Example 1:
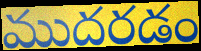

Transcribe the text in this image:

ముదరడం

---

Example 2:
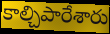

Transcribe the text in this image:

కాల్చిపారేశారు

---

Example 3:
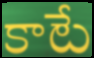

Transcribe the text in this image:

కాటే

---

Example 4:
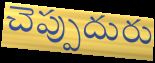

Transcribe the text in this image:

చెప్పుదురు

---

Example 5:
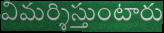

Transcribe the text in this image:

విమర్శిస్తుంటారు